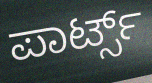
ಪಾರ್ಟ್ಸ್